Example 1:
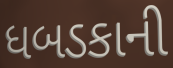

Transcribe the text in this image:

ધબડકાની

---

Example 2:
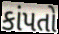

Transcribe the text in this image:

કાંપતો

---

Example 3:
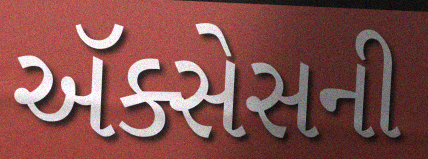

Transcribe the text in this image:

ઍક્સેસની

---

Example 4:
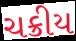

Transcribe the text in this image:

ચક્રીય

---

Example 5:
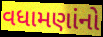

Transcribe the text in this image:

વધામણાંનો